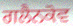
ਗਲੈਨਕੋਵ